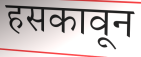
हसकावून